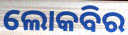
ଲୋକବିର